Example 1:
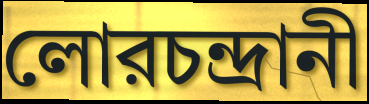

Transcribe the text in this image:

লোরচন্দ্রানী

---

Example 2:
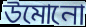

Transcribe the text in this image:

উমোনো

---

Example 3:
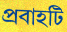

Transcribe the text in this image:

প্রবাহটি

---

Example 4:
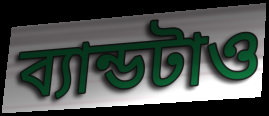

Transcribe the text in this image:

ব্যান্ডটাও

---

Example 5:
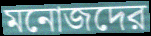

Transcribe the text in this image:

মনোজদের